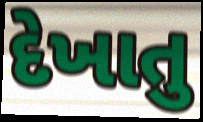
દેખાતુ